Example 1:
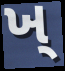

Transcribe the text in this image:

ખ્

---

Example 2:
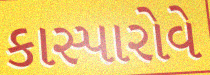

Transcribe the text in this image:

કાસ્પારોવે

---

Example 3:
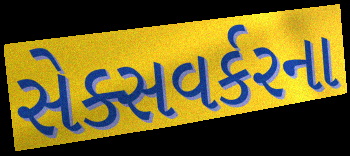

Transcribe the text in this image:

સેક્સવર્કરના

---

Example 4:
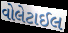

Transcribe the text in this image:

વોલેટાઈલ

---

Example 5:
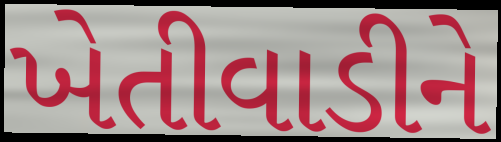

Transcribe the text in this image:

ખેતીવાડીને